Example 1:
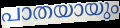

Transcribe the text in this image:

പാതയായും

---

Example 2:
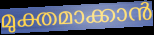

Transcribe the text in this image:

മുക്തമാക്കാൻ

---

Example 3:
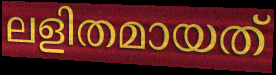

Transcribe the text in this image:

ലളിതമായത്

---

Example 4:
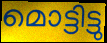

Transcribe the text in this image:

മൊട്ടിട്ടു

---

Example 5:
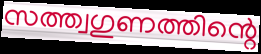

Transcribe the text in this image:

സത്ത്വഗുണത്തിന്റെ